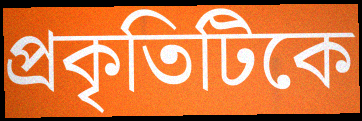
প্রকৃতিটিকে